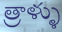
త్రాళ్ళు